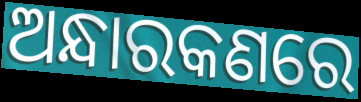
ଅନ୍ଧାରକଣରେ